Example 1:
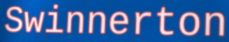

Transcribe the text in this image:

Swinnerton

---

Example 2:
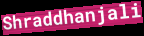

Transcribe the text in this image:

Shraddhanjali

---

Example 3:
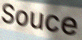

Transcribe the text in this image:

Souce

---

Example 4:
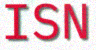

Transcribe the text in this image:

ISN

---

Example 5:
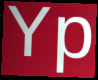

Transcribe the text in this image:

Yp